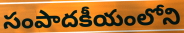
సంపాదకీయంలోని